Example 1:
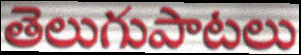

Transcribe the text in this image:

తెలుగుపాటలు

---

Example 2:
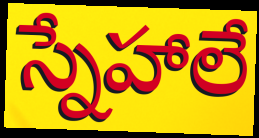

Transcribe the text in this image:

స్నేహాలే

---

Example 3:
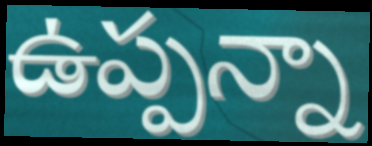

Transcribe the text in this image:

ఉప్పన్నా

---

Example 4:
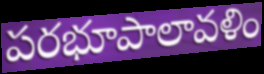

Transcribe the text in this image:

పరభూపాలావళిం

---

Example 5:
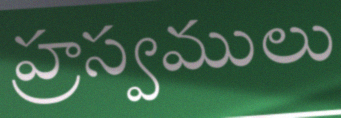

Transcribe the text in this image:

హ్రస్వములు